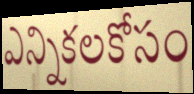
ఎన్నికలకోసం